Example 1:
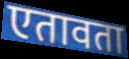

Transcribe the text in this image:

एतावता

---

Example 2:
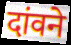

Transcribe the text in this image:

दांवने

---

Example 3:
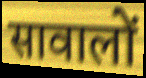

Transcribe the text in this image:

सावालों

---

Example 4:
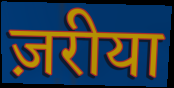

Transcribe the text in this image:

ज़रीया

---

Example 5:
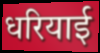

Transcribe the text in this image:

धरियाई